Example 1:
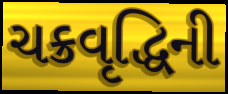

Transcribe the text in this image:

ચક્રવૃદ્ધિની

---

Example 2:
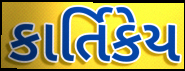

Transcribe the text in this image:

કાર્તિકેય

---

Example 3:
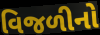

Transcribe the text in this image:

વિજળીનો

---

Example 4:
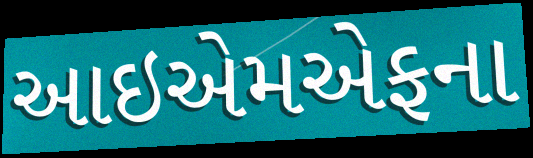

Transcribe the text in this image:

આઇએમએફના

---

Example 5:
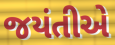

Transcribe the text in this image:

જયંતીએ